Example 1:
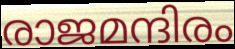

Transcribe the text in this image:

രാജമന്ദിരം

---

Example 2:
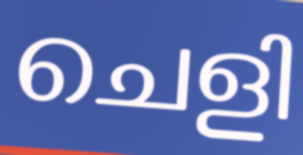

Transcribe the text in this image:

ചെളി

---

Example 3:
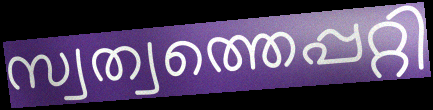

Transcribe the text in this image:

സ്വത്വത്തെപ്പറ്റി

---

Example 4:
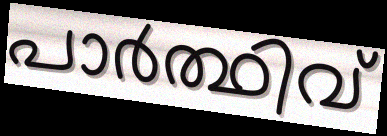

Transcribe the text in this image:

പാർത്ഥിവ്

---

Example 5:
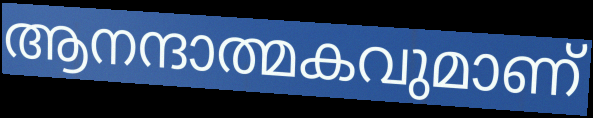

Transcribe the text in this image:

ആനന്ദാത്മകവുമാണ്